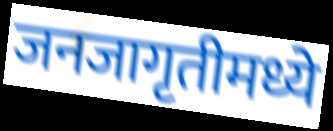
जनजागृतीमध्ये